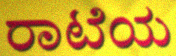
ರಾಟೆಯ